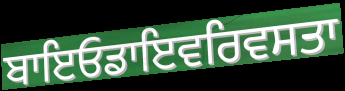
ਬਾਇਓਡਾਇਵਰਿਵਸਤਾ